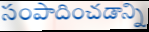
సంపాదించడాన్ని